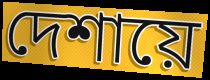
দেশায়ে